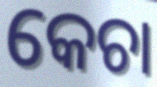
କେଚା